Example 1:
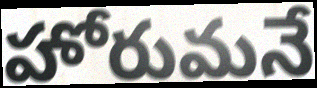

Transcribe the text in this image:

హోరుమనే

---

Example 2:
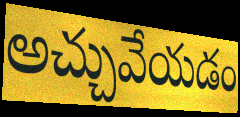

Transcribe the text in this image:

అచ్చువేయడం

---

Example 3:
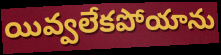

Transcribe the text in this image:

యివ్వలేకపోయాను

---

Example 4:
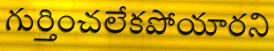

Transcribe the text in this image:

గుర్తించలేకపోయారని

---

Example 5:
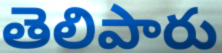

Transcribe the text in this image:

తెలిపారు